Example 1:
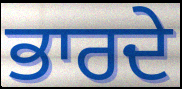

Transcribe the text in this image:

ਭਾਰਦੇ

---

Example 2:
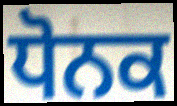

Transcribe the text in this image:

ਧੋਨਕ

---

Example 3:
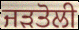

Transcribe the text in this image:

ਜੜਤੋਲੀ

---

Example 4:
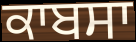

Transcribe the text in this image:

ਕਾਬਸਾ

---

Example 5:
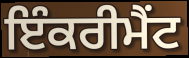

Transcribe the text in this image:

ਇੰਕਰੀਮੈਂਟ